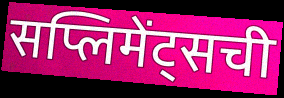
सप्लिमेंट्सची